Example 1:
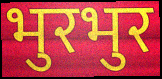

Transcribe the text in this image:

भुरभुर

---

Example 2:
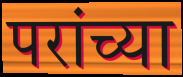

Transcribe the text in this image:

परांच्या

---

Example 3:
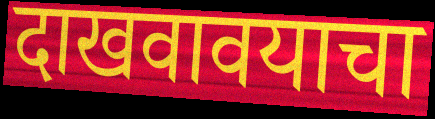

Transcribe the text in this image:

दाखवावयाचा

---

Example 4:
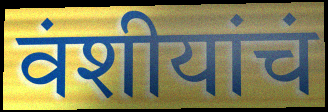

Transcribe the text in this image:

वंशीयांचं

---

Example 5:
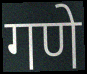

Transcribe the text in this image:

गणे